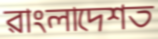
ৱাংলাদেশত